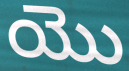
యొ